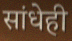
सांधेही